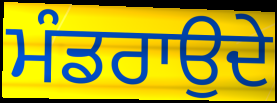
ਮੰਡਰਾਉਦੇ